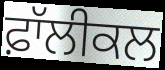
ਫ਼ਾੱਲੀਕਲ